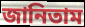
জানিতাম